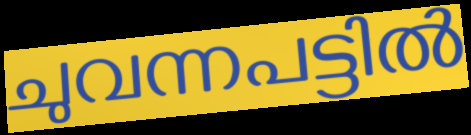
ചുവന്നപട്ടിൽ